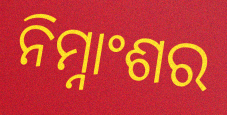
ନିମ୍ନାଂଶର